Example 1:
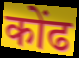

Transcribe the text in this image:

कोंढ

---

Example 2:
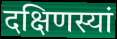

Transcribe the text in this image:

दक्षिणस्यां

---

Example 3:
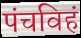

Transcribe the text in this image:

पंचविहं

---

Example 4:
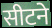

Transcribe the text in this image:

सीटने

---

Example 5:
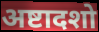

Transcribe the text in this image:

अष्टादशो